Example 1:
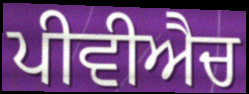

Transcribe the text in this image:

ਪੀਵੀਐਚ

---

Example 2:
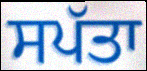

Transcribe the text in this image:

ਸਪੱਤਾ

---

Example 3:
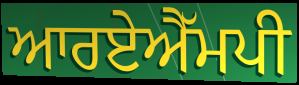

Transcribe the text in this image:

ਆਰਏਐੱਮਪੀ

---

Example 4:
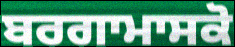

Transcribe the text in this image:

ਬਰਗਾਮਾਸਕੋ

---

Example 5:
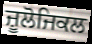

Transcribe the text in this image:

ਜ਼ੂਲੋਜਿਕਲ